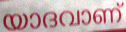
യാദവാണ്